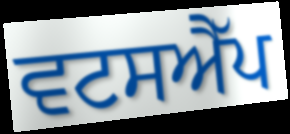
ਵਟਸਐੱਪ